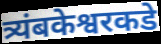
त्र्यंबकेश्वरकडे